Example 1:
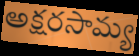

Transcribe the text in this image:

అక్షరసామ్య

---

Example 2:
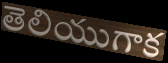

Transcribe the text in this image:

తెలియుగాక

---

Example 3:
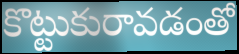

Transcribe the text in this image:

కొట్టుకురావడంతో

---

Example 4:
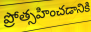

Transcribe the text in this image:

ప్రోత్సహించడానికి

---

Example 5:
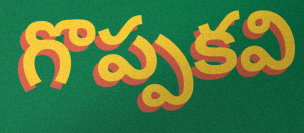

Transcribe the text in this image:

గొప్పకవి